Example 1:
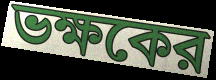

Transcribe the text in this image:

ভক্ষকের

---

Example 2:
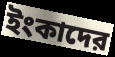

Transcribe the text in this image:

ইংকাদের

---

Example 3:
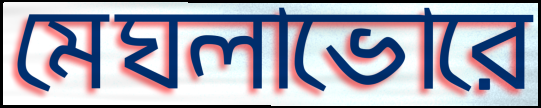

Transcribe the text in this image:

মেঘলাভোরে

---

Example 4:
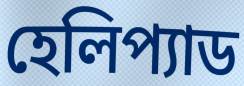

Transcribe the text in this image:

হেলিপ্যাড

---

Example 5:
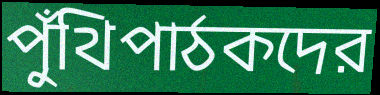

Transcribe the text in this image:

পুঁথিপাঠকদের